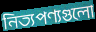
নিত্যপণ্যগুলো